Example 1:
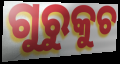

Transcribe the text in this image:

ଗୁରୁକୁଚ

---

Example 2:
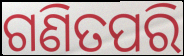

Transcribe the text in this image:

ଗଣିତପରି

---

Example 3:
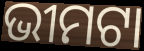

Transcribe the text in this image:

ଭୀମଟା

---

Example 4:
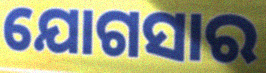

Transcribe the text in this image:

ଯୋଗସାର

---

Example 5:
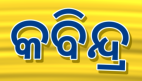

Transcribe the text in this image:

କବିନ୍ଦ୍ର